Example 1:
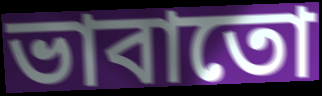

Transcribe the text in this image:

ভাবাতো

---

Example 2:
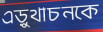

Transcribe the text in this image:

এড়ুথাচনকে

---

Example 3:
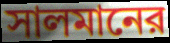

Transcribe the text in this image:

সালমানের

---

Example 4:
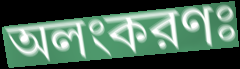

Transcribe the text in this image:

অলংকরণঃ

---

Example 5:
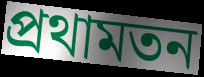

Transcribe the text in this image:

প্রথামতন